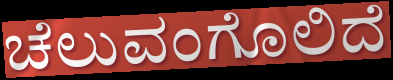
ಚೆಲುವಂಗೊಲಿದೆ